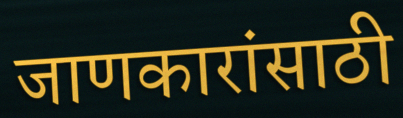
जाणकारांसाठी